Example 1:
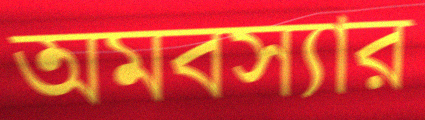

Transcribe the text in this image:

অমবস্যার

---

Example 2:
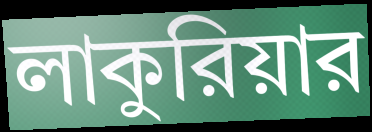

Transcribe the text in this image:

লাকুরিয়ার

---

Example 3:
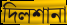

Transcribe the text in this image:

দিলশানা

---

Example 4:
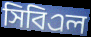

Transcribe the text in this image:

সিবিএল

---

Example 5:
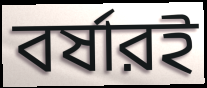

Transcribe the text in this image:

বর্ষারই